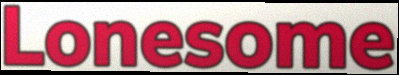
Lonesome